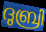
ദുബ്രി